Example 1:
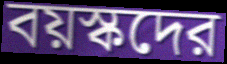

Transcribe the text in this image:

বয়স্কদের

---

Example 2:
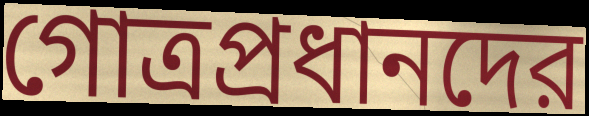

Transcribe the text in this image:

গোত্রপ্রধানদের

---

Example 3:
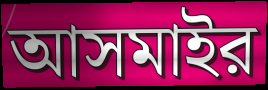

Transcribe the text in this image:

আসমাইর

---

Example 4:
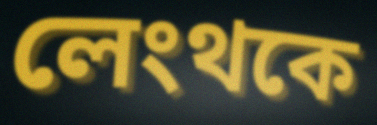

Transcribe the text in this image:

লেংথকে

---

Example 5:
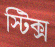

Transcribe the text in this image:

স্টিক্স